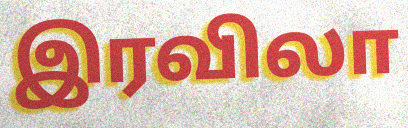
இரவிலா